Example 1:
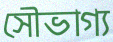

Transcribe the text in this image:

সৌভাগ্য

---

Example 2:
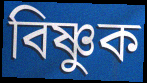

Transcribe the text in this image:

বিষ্ণুক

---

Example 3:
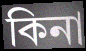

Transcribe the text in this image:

কিনা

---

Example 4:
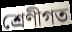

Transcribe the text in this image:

শ্ৰেণীগত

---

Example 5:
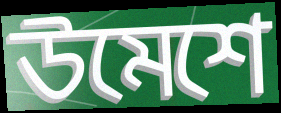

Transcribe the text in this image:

উমেশে